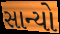
સાન્યો